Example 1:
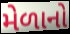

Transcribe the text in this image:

મેળાનો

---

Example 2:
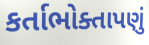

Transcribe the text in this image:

કર્તાભોક્તાપણું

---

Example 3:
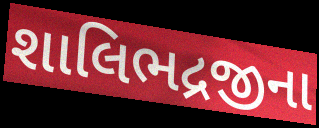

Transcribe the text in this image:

શાલિભદ્રજીના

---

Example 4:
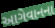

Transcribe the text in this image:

આગેવાનના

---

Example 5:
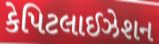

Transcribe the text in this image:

કેપિટલાઈઝેશન